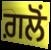
ਗ਼ਲੋਂ